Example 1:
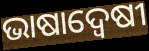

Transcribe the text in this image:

ଭାଷାଦ୍ଵେଷୀ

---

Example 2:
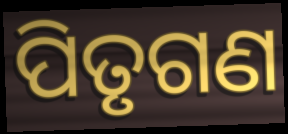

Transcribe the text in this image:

ପିତୃଗଣ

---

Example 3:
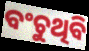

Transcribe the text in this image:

ବଂଚୁଥିବି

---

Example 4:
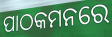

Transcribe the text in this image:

ପାଠକମନରେ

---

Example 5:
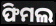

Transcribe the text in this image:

ଫିମଲ